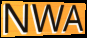
NWA